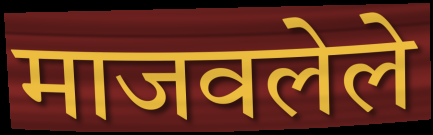
माजवलेले